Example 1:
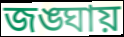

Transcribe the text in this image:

জঙ্ঘায়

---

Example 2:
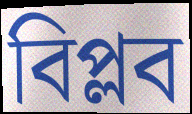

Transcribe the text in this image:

বিপ্লব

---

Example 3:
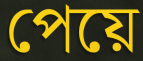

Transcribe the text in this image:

পেয়ে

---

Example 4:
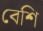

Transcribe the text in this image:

বেশি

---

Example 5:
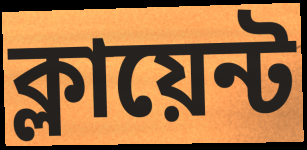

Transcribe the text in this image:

ক্লায়েন্ট